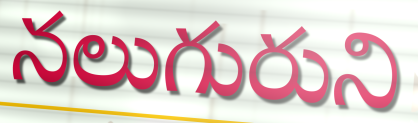
నలుగురుని